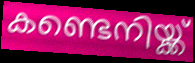
കണ്ടെനിയ്ക്ക്